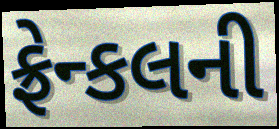
ફ્રેન્કલની